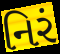
નિરં